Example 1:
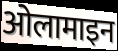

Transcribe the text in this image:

ओलामाइन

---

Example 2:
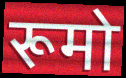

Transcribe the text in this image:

रूमो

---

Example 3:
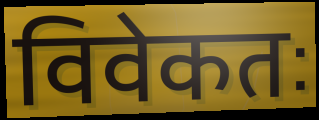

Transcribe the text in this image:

विवेकतः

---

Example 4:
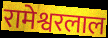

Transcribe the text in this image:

रामेश्वरलाल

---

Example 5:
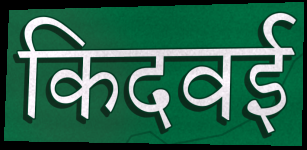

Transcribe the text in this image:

किदवई